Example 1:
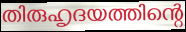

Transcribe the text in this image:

തിരുഹൃദയത്തിന്റെ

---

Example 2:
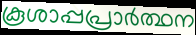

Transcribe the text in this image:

കൂശാപ്പപ്രാർത്ഥന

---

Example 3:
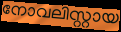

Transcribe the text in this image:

നോവലിസ്റ്റായ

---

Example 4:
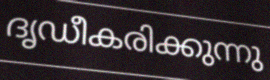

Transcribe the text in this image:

ദൃഡീകരിക്കുന്നു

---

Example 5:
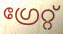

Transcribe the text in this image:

ഗ്രേറ്റ്